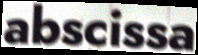
abscissa